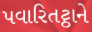
પવારિતટ્ઠાને